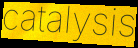
catalysis